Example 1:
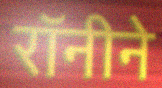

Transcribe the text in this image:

रॉनीने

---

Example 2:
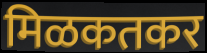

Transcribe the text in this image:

मिळकतकर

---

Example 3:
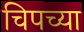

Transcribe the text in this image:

चिपच्या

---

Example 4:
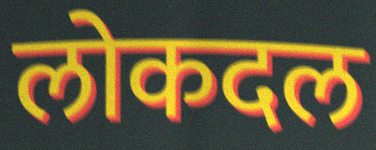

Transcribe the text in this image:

लोकदल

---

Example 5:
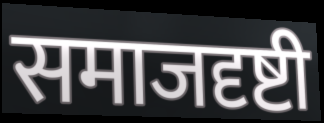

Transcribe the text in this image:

समाजदृष्टी